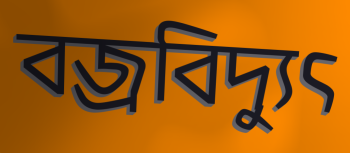
বজ্রবিদ্যুৎ